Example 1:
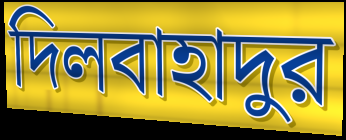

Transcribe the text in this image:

দিলবাহাদুর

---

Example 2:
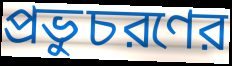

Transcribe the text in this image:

প্রভুচরণের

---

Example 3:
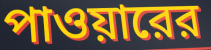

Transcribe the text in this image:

পাওয়ারের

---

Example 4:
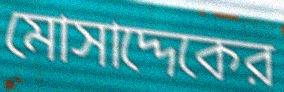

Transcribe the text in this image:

মোসাদ্দেকের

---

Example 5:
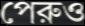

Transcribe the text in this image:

পেরুও